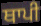
ਥਾਪੀ